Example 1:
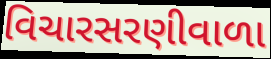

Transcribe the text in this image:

વિચારસરણીવાળા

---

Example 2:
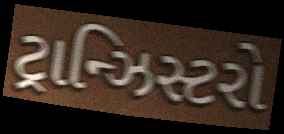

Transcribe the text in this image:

ટ્રાન્ઝિસ્ટરો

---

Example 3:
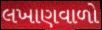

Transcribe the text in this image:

લખાણવાળો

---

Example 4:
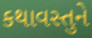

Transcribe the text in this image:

કથાવસ્તુને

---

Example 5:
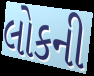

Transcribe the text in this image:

લોકની